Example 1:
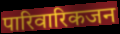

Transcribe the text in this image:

पारिवारिकजन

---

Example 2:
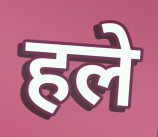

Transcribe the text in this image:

हले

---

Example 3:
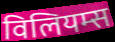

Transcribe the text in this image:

विलियम्‍स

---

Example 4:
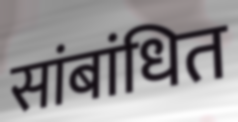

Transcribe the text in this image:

सांबांधित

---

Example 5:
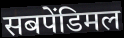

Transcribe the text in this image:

सबपेंडिमल